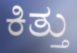
ಕಿತ್ತು